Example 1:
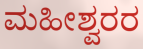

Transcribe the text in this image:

ಮಹೀಶ್ವರರ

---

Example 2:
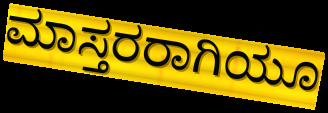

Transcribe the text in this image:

ಮಾಸ್ತರರಾಗಿಯೂ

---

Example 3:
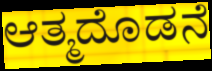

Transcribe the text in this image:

ಆತ್ಮದೊಡನೆ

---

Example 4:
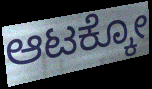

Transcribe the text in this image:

ಆಟಕ್ಕೋ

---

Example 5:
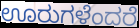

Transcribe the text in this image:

ಊರುಗಳೆಂದರೆ